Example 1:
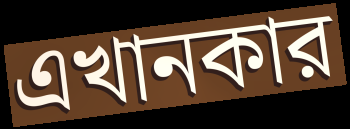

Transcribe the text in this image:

এখানকার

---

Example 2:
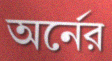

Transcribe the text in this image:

অর্নের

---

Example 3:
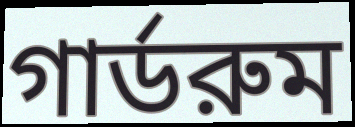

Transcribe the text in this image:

গার্ডরুম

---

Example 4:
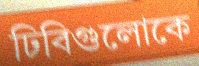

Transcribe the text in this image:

ঢিবিগুলোকে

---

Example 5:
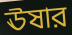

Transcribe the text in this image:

ঊষার